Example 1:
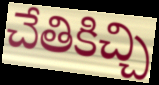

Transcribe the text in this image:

చేతికిచ్చి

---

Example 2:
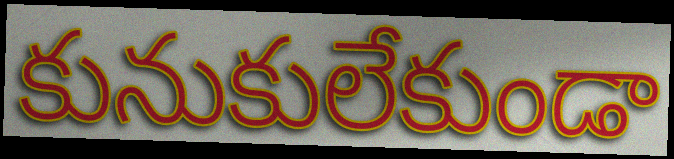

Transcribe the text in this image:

కునుకులేకుండా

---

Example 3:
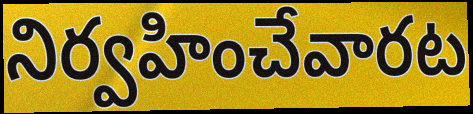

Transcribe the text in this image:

నిర్వహించేవారట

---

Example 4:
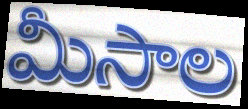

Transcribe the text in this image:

మీసాల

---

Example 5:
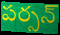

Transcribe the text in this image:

పర్సన్